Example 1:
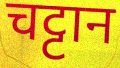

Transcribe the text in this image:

चट्टान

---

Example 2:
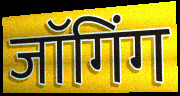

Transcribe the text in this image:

जॉगिंग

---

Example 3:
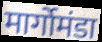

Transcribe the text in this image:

मार्गोमंडा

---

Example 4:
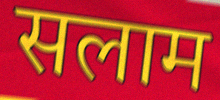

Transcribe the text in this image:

सलाम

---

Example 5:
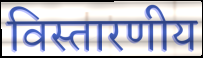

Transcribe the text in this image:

विस्तारणीय